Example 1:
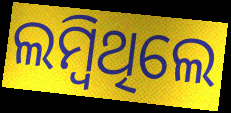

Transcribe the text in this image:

ଲମ୍ବିଥିଲେ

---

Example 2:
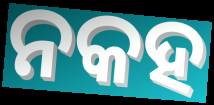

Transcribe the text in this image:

ନକହ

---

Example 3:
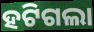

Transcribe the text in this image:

ହଟିଗଲା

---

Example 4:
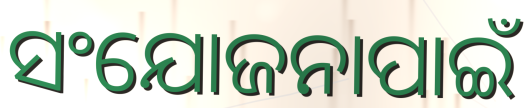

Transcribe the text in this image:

ସଂଯୋଜନାପାଇଁ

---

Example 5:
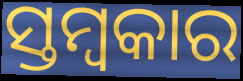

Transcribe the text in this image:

ସ୍ତମ୍ବକାର